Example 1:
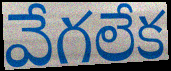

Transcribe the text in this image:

వేగలేక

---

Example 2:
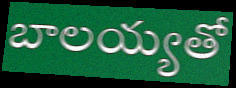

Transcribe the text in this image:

బాలయ్యతో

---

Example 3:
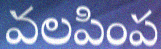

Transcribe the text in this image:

వలపింప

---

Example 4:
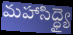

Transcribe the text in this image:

మహాసిద్ధ్యై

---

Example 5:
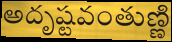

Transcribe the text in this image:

అదృష్టవంతుణ్ణి